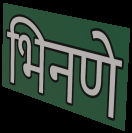
भिनणे